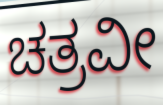
ಚತ್ರವೀ